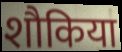
शौकिया